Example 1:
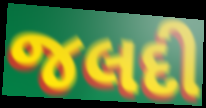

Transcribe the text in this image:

જલદી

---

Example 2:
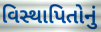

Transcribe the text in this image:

વિસ્થાપિતોનું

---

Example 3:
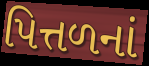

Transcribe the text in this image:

પિત્તળનાં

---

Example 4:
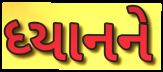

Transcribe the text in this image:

ધ્યાનને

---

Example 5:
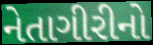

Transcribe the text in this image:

નેતાગીરીનો